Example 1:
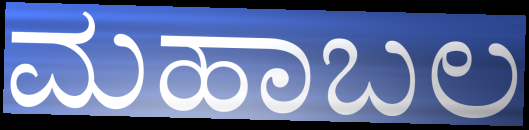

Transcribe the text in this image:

ಮಹಾಬಲ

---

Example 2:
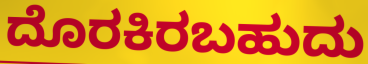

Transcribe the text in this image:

ದೊರಕಿರಬಹುದು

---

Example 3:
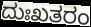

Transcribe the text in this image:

ದುಃಖತರಂ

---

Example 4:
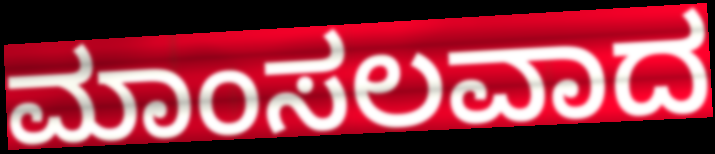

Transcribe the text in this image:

ಮಾಂಸಲವಾದ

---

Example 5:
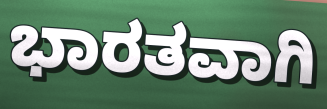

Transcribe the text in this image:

ಭಾರತವಾಗಿ